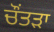
ਚੌਂਤੜਾ